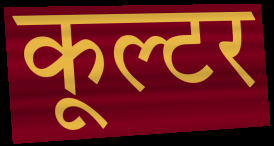
कूल्टर